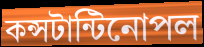
কন্সটান্টিনোপল